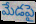
మేడపై